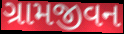
ગ્રામજીવન